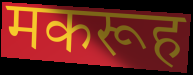
मकरूह